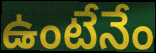
ఉంటేనేం